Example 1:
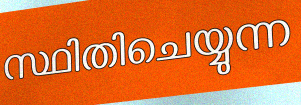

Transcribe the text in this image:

സ്ഥിതിചെയ്യുന്ന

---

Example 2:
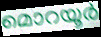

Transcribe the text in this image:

മൊറയൂർ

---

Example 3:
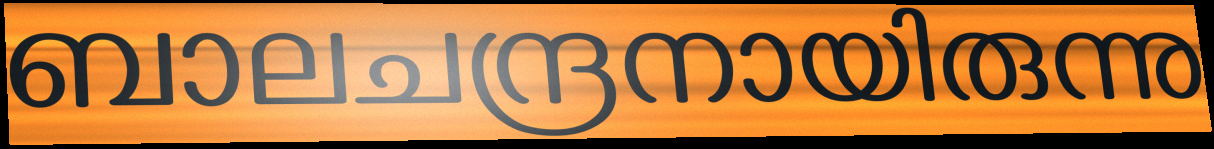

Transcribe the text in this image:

ബാലചന്ദ്രനായിരുന്നു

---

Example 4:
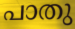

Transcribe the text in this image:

പാതു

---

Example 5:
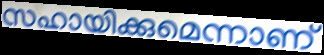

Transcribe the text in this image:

സഹായിക്കുമെന്നാണ്